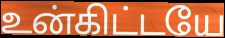
உன்கிட்டயே